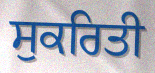
ਸੁਕਰਿਤੀ